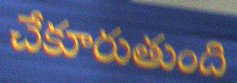
చేకూరుతుంది